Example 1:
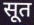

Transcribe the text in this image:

सूत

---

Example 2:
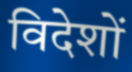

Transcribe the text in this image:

विदेशों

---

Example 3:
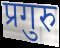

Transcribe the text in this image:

प्रगुरु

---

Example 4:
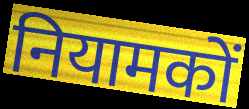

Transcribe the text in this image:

नियामकों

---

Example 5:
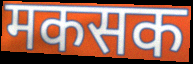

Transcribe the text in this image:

मकसक